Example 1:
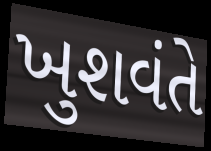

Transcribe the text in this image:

ખુશવંતે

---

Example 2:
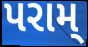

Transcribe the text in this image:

પરામ્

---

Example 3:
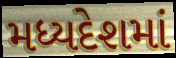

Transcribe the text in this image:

મધ્યદેશમાં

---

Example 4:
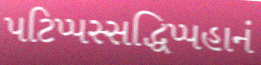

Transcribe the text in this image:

પટિપ્પસ્સદ્ધિપ્પહાનં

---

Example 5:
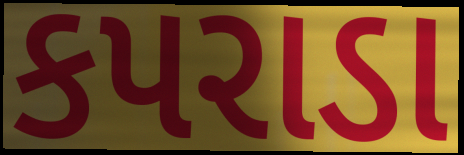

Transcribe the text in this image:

કપરાડા